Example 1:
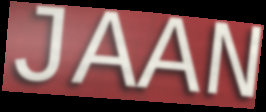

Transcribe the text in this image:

JAAN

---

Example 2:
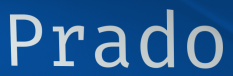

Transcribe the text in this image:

Prado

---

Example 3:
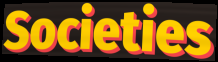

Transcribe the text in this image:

Societies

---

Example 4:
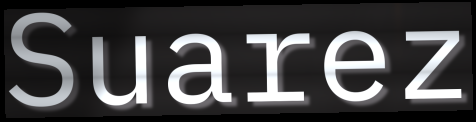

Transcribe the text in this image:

Suarez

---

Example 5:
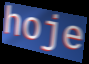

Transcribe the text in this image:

hoje